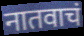
नातवाचं